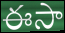
ఈసా